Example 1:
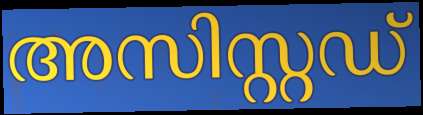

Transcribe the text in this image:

അസിസ്റ്റഡ്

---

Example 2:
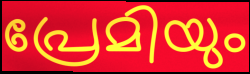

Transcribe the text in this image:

പ്രേമിയും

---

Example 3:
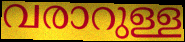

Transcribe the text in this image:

വരാറുള്ള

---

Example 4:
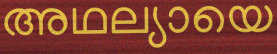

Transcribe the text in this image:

അഥല്യായെ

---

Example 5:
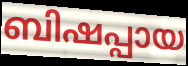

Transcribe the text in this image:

ബിഷപ്പായ